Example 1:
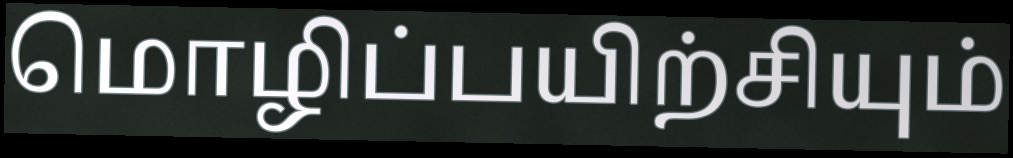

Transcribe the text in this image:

மொழிப்பயிற்சியும்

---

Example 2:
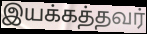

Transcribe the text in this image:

இயக்கத்தவர்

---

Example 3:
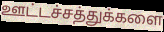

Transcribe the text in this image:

ஊட்டச்சத்துக்களை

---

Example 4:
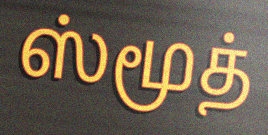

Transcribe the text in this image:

ஸ்மூத்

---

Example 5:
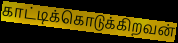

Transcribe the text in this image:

காட்டிக்கொடுக்கிறவன்